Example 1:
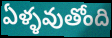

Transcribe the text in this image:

ఏళ్ళవుతోంది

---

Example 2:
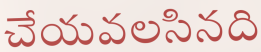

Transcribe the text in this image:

చేయవలసినది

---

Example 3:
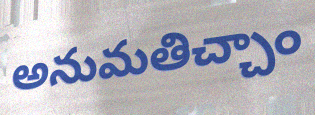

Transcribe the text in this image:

అనుమతిచ్చాం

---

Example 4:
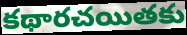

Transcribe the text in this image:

కథారచయితకు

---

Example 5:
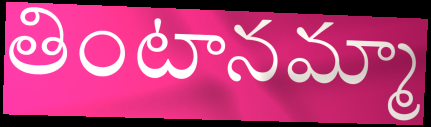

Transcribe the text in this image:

తింటానమ్మా